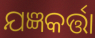
ଯଜ୍ଞକର୍ତ୍ତା